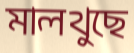
মালথুছে